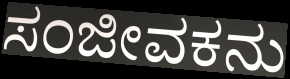
ಸಂಜೀವಕನು